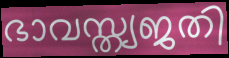
ഭാവസ്ത്യജതി